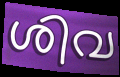
ശിവ